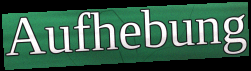
Aufhebung